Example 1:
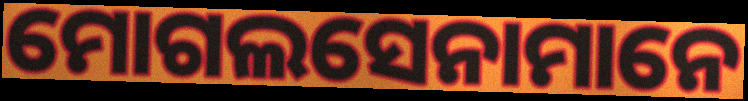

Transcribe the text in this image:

ମୋଗଲସେନାମାନେ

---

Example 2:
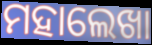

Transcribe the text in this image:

ମହାଲେଖା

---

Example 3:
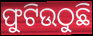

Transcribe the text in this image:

ଫୁଟିଉଠୁଛି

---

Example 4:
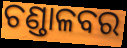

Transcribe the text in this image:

ଚଣ୍ଡାଳବର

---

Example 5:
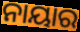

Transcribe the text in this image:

ନାୟାର